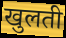
खुलती